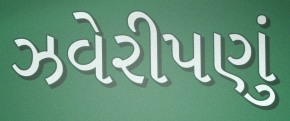
ઝવેરીપણું